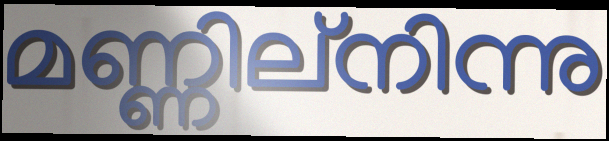
മണ്ണില്നിന്നു